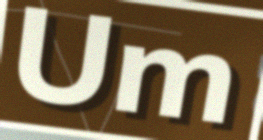
Um